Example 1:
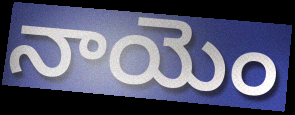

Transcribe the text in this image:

నాయెం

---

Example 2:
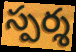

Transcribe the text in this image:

స్పర్శ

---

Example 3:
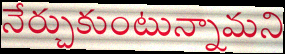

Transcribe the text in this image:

నేర్చుకుంటున్నామని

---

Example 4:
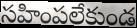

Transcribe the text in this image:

సహింపలేకుండ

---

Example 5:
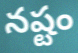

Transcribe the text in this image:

నష్టం